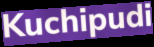
Kuchipudi